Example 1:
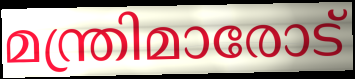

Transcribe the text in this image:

മന്ത്രിമാരോട്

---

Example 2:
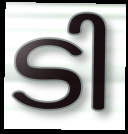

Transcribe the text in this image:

ടി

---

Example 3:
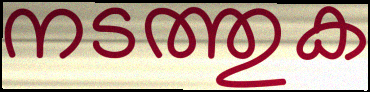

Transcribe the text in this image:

നടത്തുക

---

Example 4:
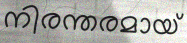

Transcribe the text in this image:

നിരന്തരമായ്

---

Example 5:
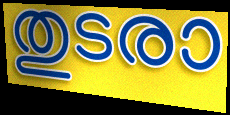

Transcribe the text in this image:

തുടരാ